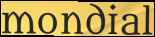
mondial